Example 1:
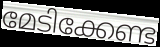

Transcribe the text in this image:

മേടിക്കേണ്ട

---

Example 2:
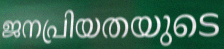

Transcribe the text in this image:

ജനപ്രിയതയുടെ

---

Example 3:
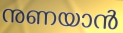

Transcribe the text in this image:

നുണയാൻ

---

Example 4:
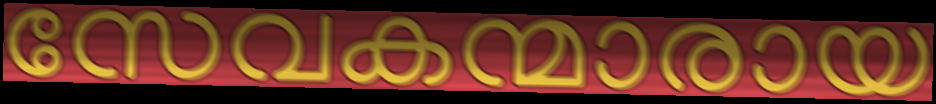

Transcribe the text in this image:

സേവകന്മാരായ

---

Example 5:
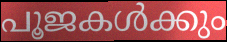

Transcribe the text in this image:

പൂജകൾക്കും